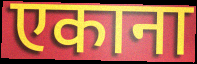
एकाना